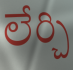
లేర్చి